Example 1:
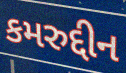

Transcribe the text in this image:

કમરુદ્દીન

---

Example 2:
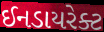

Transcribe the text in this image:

ઈનડાયરેક્ટ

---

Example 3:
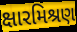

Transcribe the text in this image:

ક્ષારમિશ્રણ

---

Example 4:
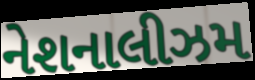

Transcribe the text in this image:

નેશનાલીઝમ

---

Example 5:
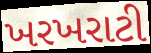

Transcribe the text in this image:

ખરખરાટી